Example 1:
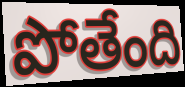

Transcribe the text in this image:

పోతేంది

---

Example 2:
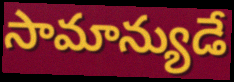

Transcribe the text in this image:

సామాన్యుడే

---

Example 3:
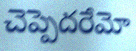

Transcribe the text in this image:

చెప్పెదరేమో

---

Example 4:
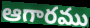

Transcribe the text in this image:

ఆగారము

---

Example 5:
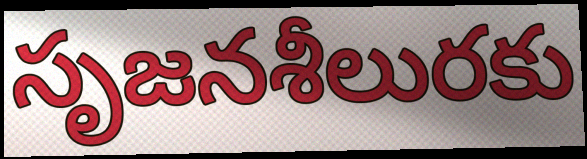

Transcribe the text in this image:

సృజనశీలురకు